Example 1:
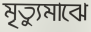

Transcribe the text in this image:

মৃত্যুমাঝে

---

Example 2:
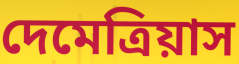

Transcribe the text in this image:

দেমেত্রিয়াস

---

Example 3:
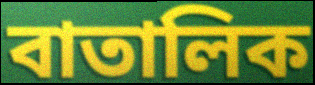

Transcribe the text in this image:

বাতালিক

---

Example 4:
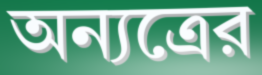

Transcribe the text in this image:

অন্যত্রের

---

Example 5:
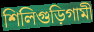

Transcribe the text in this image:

শিলিগুড়িগামী